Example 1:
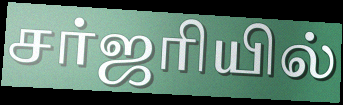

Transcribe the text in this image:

சர்ஜரியில்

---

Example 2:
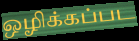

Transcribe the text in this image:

ஒழிக்கப்பட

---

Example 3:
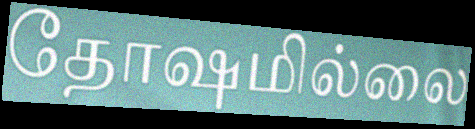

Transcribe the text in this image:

தோஷமில்லை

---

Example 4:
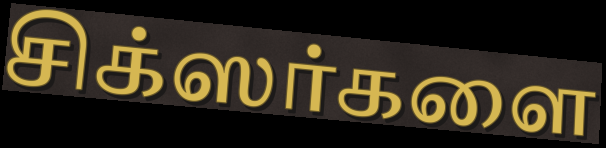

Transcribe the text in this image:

சிக்ஸர்களை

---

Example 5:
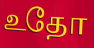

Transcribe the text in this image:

உதோ